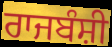
ਰਾਜਬੰਸ਼ੀ